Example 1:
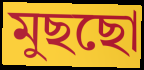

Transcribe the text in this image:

মুছছো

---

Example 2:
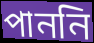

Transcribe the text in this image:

পাননি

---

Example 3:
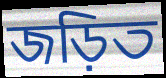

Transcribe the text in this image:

জড়িত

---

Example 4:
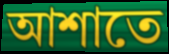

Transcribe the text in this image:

আশাতে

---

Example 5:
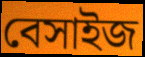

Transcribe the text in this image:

বেসাইজ